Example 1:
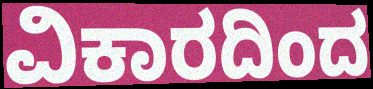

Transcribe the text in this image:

ವಿಕಾರದಿಂದ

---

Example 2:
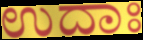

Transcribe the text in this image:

ಉದಾಃ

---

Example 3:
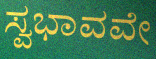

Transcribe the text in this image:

ಸ್ವಭಾವವೇ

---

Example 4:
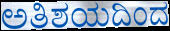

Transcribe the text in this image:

ಅತಿಶಯದಿಂದ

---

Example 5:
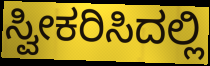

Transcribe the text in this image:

ಸ್ವೀಕರಿಸಿದಲ್ಲಿ